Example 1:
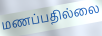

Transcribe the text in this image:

மணப்பதில்லை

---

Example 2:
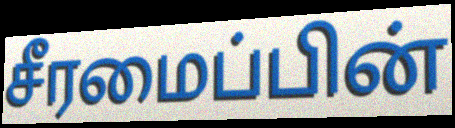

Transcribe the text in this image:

சீரமைப்பின்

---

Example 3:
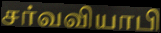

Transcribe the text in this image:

சர்வவியாபி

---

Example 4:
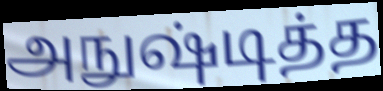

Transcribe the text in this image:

அநுஷ்டித்த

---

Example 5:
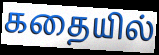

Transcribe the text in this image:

கதையில்